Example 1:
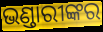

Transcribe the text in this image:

ଭଣ୍ଡାରୀଙ୍କର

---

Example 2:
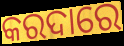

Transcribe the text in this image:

କରଦାରେ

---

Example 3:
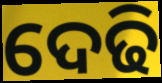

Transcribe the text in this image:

ଦେଢି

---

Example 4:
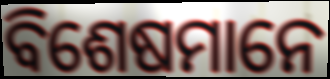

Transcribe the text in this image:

ବିଶେଷମାନେ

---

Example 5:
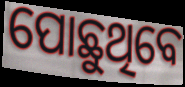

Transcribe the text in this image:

ପୋଛୁଥିବେ